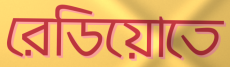
রেডিয়োতে